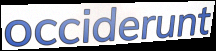
occiderunt